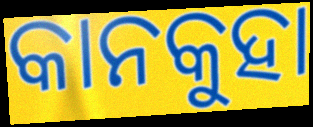
କାନକୁହା